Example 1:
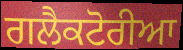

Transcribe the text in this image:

ਗਲੈਕਟੋਰੀਆ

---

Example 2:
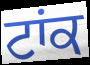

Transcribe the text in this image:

ਟਾਂਕ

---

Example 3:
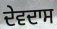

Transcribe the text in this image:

ਦੇਵਦਾਸ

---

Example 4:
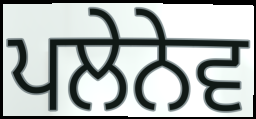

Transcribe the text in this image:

ਪਲੇਨੇਵ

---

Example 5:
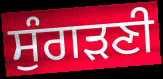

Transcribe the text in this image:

ਸੁੰਗੜਣੀ